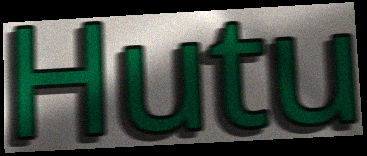
Hutu